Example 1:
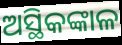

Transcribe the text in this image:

ଅସ୍ଥିକଙ୍କାଳ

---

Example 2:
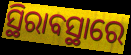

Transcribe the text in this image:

ସ୍ଥିରାବସ୍ଥାରେ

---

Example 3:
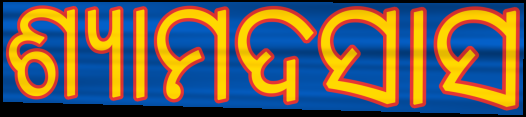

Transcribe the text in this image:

ଶ୍ୟାମଦସାସ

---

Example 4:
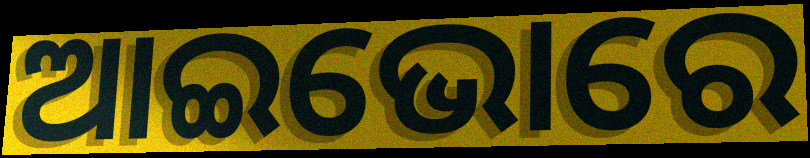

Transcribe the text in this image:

ଆଇଭୋରେ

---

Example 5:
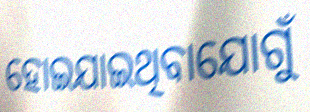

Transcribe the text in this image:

ହୋଇଯାଇଥିବାଯୋଗୁଁ